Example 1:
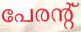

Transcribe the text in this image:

പേരന്റ്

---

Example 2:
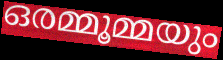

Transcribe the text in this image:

ഒരമ്മൂമ്മയും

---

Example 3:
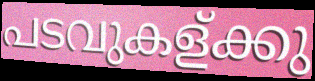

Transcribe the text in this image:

പടവുകള്ക്കു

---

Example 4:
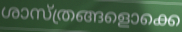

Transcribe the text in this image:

ശാസ്ത്രങ്ങളൊക്കെ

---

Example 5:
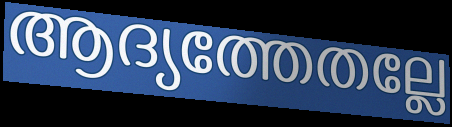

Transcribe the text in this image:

ആദ്യത്തേതല്ലേ